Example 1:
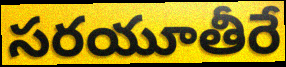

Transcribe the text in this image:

సరయూతీరే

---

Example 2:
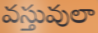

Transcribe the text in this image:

వస్తువులా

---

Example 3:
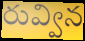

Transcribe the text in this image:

రువ్విన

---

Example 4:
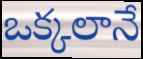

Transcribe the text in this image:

ఒక్కలానే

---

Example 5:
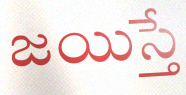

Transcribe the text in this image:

జయిస్తే